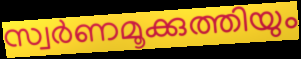
സ്വർണമൂക്കുത്തിയും